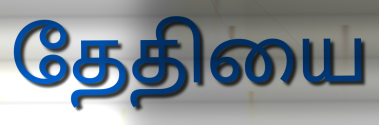
தேதியை